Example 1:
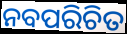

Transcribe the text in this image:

ନବପରିଚିତ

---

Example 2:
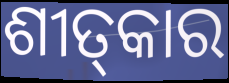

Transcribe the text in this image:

ଶୀତ୍‌କାର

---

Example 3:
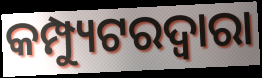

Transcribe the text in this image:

କମ୍ପ୍ୟୁଟରଦ୍ୱାରା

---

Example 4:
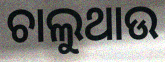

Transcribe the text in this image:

ଚାଲୁଥାଉ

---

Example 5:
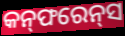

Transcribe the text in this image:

କନ୍‌ଫରେନ୍‌ସ